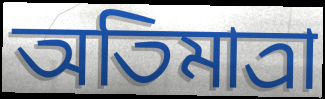
অতিমাত্ৰা